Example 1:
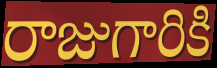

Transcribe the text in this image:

రాజుగారికి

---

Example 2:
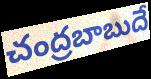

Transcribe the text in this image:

చంద్రబాబుదే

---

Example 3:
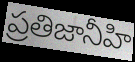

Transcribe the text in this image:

ప్రతిజానీహి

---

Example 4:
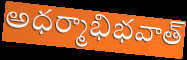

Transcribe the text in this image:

అధర్మాభిభవాత్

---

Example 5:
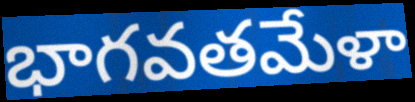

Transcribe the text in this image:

భాగవతమేళా